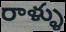
రాళ్ళు